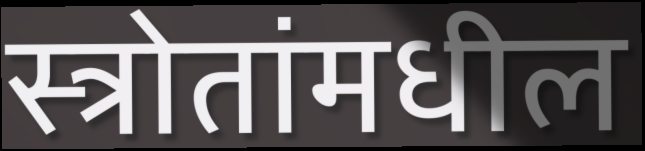
स्त्रोतांमधील